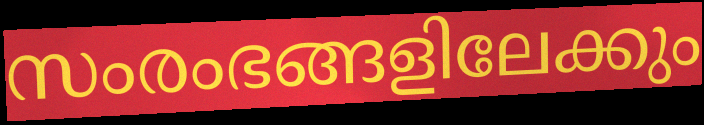
സംരംഭങ്ങളിലേക്കും